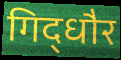
गिद्धौर